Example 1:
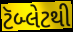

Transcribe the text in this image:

ટૅબ્લેટથી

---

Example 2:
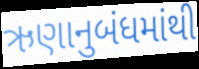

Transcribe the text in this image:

ઋણાનુબંધમાંથી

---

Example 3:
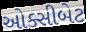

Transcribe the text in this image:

ઓક્સીબેટ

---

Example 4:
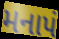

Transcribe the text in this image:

મનાપં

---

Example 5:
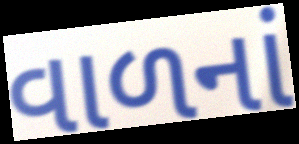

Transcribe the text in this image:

વાળનાં